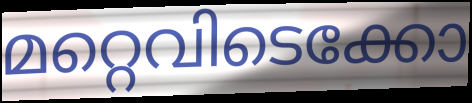
മറ്റെവിടെക്കോ